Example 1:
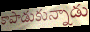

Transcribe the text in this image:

కాపాడుకున్నాడు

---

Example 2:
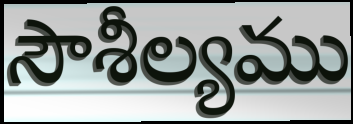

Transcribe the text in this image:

సౌశీల్యము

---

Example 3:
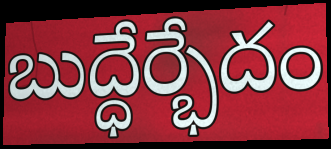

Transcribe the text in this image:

బుద్ధేర్భేదం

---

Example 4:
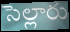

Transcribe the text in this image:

సెల్లారు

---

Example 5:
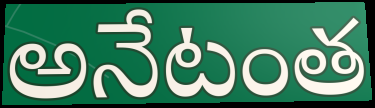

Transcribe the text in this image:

అనేటంత